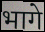
भागे